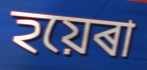
হয়েৰা